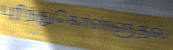
புரிந்துகொள்ளுதல்